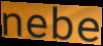
nebe